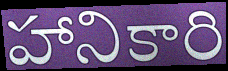
హానికారి